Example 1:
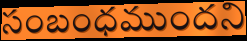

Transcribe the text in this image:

సంబంధముందని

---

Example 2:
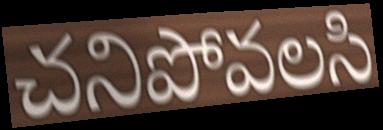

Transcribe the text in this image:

చనిపోవలసి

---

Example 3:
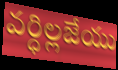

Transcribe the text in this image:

వర్ధిల్లజేయు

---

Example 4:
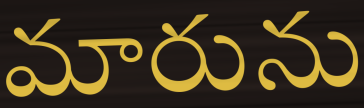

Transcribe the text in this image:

మారును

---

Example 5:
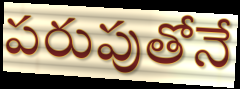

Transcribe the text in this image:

పరుపుతోనే